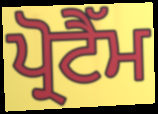
ਪ੍ਰੋਟੈੱਮ